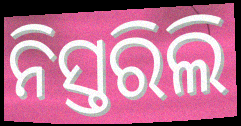
ନିସ୍ତରିଲି